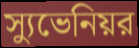
স্যুভেনিয়র